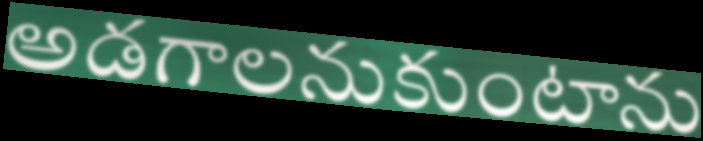
అడగాలనుకుంటాను